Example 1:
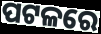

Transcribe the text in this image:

ପଟଳରେ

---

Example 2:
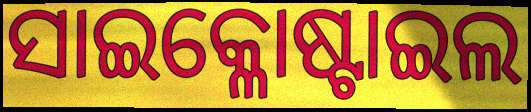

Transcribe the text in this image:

ସାଇକ୍ଳୋଷ୍ଟାଇଲ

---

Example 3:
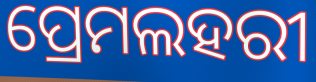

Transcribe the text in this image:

ପ୍ରେମଲହରୀ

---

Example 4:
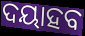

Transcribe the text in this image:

ଦୟାହବ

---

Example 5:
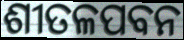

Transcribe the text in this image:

ଶୀତଳପବନ